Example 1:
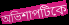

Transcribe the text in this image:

অভিশাপটিকে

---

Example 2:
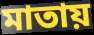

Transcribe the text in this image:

মাতায়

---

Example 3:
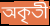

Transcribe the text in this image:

অকৃতী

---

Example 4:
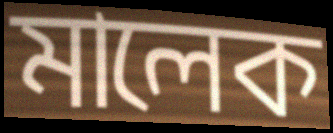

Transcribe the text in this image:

মালেক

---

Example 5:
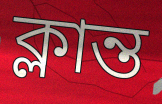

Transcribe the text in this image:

ক্লান্ত